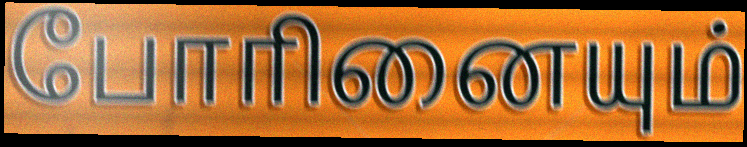
போரினையும்